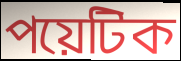
পয়েটিক